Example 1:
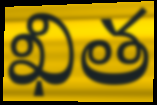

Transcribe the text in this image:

ఖిత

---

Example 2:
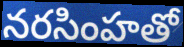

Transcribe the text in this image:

నరసింహతో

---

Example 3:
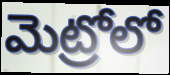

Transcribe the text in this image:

మెట్రోలో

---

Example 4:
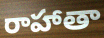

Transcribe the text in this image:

రాహాతా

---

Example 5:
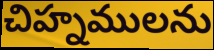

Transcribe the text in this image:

చిహ్నములను